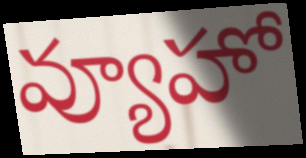
వ్యూహో